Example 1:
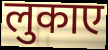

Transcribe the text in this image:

लुकाए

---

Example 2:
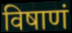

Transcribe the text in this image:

विषाणं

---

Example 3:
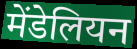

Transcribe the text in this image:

मेंडेलियन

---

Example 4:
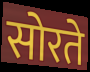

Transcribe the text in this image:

सोरते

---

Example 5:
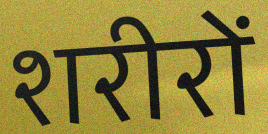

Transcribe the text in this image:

शरीरों